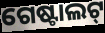
ଗେଷ୍ଟାଲଟ୍